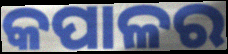
କପାଳର